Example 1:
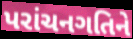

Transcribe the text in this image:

પરાંચનગતિને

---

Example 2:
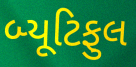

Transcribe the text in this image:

બ્યૂટિફુલ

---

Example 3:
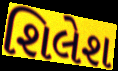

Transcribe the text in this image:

શિલેશ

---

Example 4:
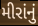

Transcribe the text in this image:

મીરાંનું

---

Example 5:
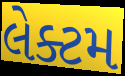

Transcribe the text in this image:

લેક્ટમ